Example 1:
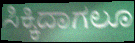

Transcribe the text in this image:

ಸಿಕ್ಕಿದಾಗಲೂ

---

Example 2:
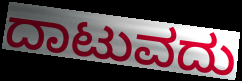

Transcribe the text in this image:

ದಾಟುವದು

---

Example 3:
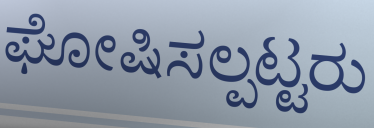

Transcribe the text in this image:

ಘೋಷಿಸಲ್ಪಟ್ಟರು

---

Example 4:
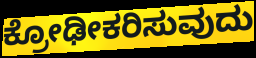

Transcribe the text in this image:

ಕ್ರೋಢೀಕರಿಸುವುದು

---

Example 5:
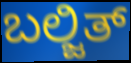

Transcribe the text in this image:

ಬಲ್ಜಿತ್